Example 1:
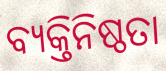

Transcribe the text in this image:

ବ୍ୟକ୍ତିନିଷ୍ଠତା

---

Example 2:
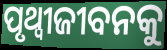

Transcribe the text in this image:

ପୃଥ୍ୱୀଜୀବନକୁ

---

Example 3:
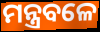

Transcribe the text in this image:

ମନ୍ତ୍ରବଳେ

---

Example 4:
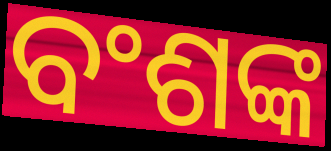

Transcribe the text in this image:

ବଂଶଙ୍କ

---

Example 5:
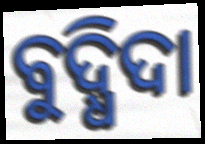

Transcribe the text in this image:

ବୁଦ୍ଧିଦା